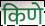
किणे